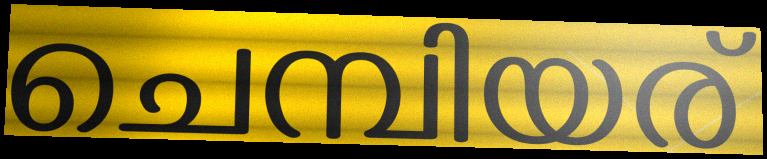
ചെമ്പിയര്